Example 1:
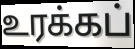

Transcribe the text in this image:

உரக்கப்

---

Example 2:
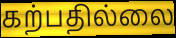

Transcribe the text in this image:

கற்பதில்லை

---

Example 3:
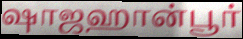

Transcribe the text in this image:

ஷாஜஹான்பூர்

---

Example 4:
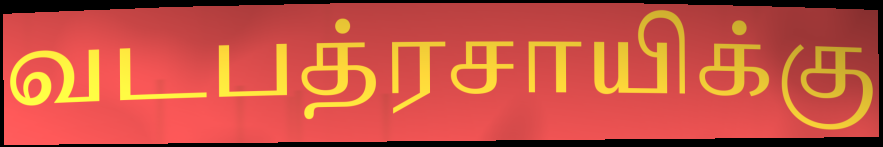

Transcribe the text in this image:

வடபத்ரசாயிக்கு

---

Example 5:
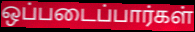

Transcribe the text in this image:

ஒப்படைப்பார்கள்